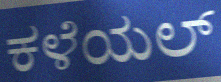
ಕಳೆಯಲ್